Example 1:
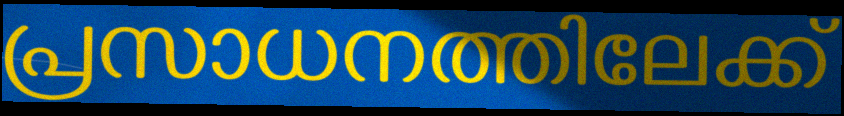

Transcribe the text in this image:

പ്രസാധനത്തിലേക്ക്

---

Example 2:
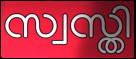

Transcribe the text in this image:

സ്വസ്തി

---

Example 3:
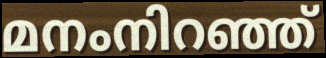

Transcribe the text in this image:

മനംനിറഞ്ഞ്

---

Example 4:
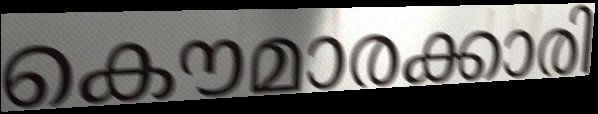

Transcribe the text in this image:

കൌമാരക്കാരി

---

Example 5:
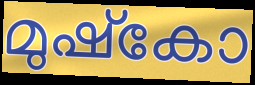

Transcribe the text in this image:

മുഷ്കോ